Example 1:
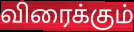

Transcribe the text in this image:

விரைக்கும்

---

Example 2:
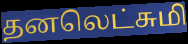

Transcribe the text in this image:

தனலெட்சுமி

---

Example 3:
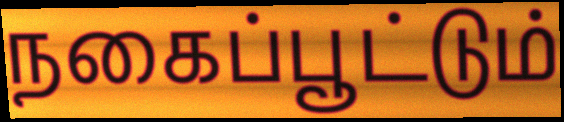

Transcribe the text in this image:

நகைப்பூட்டும்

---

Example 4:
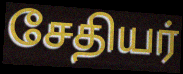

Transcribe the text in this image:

சேதியர்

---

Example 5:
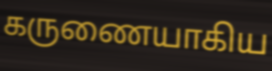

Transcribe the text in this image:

கருணையாகிய